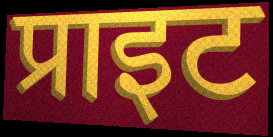
प्राइट